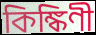
কিঙ্কিণী